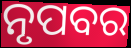
ନୃପବର